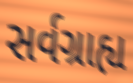
સર્વગ્રાહ્ય